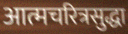
आत्मचरित्रसुद्धा